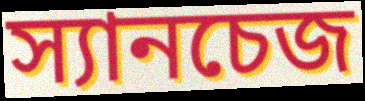
স্যানচেজ